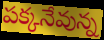
పక్కనేవున్న